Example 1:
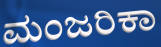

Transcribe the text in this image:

ಮಂಜರಿಕಾ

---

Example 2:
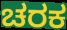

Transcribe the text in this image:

ಚರಕ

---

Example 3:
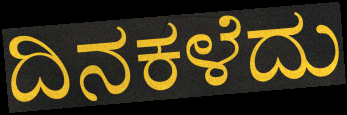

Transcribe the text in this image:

ದಿನಕಳೆದು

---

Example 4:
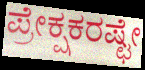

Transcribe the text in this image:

ಪ್ರೇಕ್ಷಕರಷ್ಟೇ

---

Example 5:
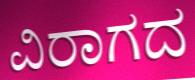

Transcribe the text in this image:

ವಿರಾಗದ